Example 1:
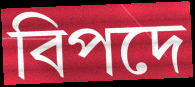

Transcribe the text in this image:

বিপদে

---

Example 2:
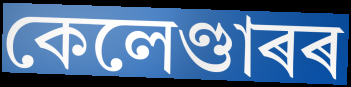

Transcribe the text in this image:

কেলেণ্ডাৰৰ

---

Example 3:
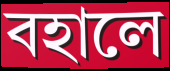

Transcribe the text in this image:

বহালে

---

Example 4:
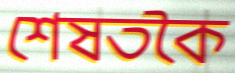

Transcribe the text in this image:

শেষতকৈ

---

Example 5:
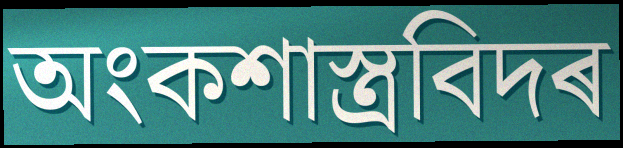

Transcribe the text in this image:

অংকশাস্ত্ৰবিদৰ